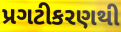
પ્રગટીકરણથી